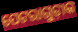
ପେଟରାଗୁଡ଼ାକ